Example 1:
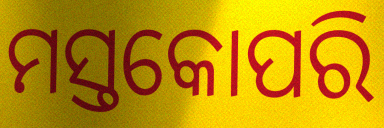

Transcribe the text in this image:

ମସ୍ତକୋପରି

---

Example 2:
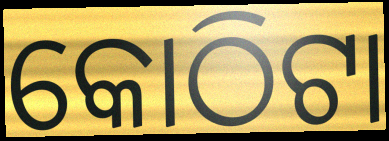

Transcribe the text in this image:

କୋଠିଟା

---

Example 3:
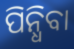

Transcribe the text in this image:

ପିନ୍ଧିବା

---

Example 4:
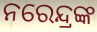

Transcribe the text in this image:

ନରେନ୍ଦ୍ରଙ୍କ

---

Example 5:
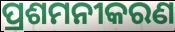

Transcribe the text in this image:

ପ୍ରଶମନୀକରଣ